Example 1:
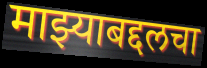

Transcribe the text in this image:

माझ्याबद्दलचा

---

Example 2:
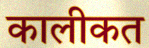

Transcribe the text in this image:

कालीकत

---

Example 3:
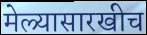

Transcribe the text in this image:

मेल्यासारखीच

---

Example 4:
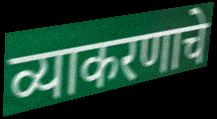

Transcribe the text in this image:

व्याकरणाचे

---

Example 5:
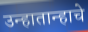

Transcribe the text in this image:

उन्हातान्हाचे